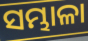
ସମ୍ଭାଳା